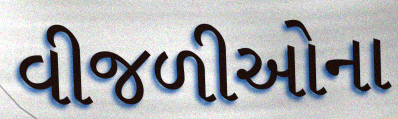
વીજળીઓના